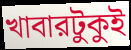
খাবারটুকুই